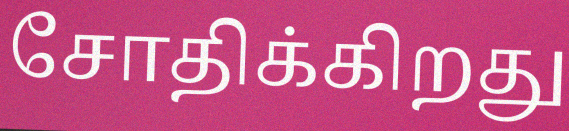
சோதிக்கிறது